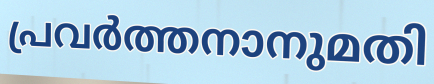
പ്രവർത്തനാനുമതി